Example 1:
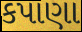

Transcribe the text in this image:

કપાણા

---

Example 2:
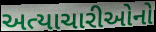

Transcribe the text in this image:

અત્યાચારીઓનો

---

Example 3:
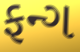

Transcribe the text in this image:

ફન્ગ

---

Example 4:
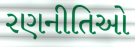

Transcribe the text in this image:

રણનીતિઓ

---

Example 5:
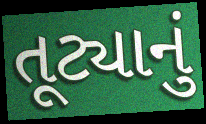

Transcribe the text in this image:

તૂટ્યાનું